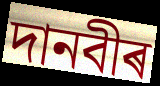
দানবীৰ